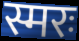
स्मरः